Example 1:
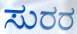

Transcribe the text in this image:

ಸುರರ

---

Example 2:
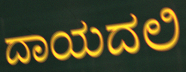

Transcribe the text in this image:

ದಾಯದಲಿ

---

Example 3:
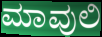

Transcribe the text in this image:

ಮಾವುಲಿ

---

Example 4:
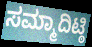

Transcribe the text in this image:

ಸಮ್ಮಾದಿಟ್ಠಿ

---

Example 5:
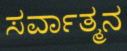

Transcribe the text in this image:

ಸರ್ವಾತ್ಮನ